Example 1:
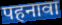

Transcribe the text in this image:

पहनावा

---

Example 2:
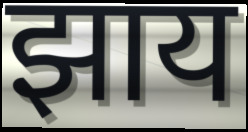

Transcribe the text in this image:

झाय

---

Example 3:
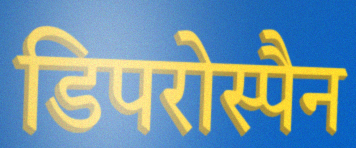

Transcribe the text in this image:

डिपरोस्पैन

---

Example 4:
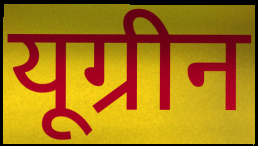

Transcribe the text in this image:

यूग्रीन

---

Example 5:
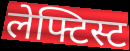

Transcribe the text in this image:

लेफ्टिस्ट